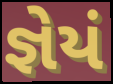
જ્ઞેયં